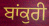
ਬਾਂਕੁਰੀ